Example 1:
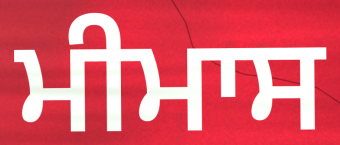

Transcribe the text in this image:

ਮੀਮਾਸ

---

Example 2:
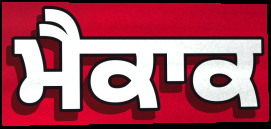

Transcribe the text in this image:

ਮੈਕਾਕ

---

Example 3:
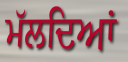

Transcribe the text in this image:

ਮੱਲਦਿਆਂ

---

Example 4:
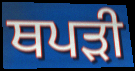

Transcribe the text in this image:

ਥਪੜੀ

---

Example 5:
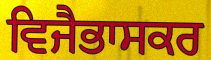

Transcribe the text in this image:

ਵਿਜੈਭਾਸਕਰ